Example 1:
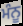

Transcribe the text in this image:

ਮੰਨੂ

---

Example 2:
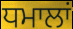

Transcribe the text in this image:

ਧਮਾਲਾਂ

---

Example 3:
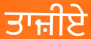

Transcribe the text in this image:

ਤਾਜ਼ੀਏ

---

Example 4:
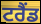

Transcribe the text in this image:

ਟਰੈਂਡ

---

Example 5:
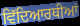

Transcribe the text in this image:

ਵਿੱਦਿਆਰਥੀਆਂ